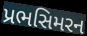
પ્રભસિમરન